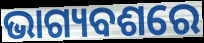
ଭାଗ୍ୟବଶରେ